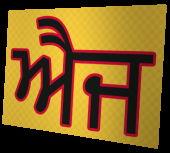
ਐਜ